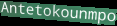
Antetokounmpo